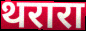
थरारा